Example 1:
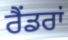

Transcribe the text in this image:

ਰੈਂਡਰਾਂ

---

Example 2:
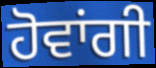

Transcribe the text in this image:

ਹੋਵਾਂਗੀ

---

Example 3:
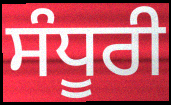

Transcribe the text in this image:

ਸੰਧੂਰੀ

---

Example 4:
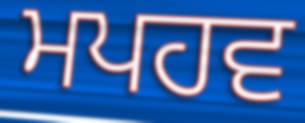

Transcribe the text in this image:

ਮਪਹਵ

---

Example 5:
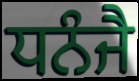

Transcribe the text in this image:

ਧਨੰਜੈ